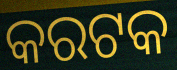
କରଟକ